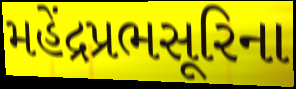
મહેંદ્રપ્રભસૂરિના